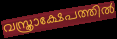
വസ്ത്രാക്ഷേപത്തിൽ